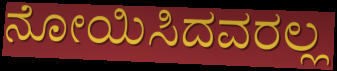
ನೋಯಿಸಿದವರಲ್ಲ